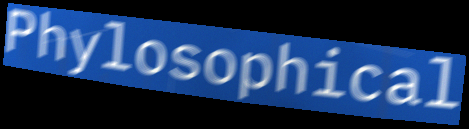
Phylosophical